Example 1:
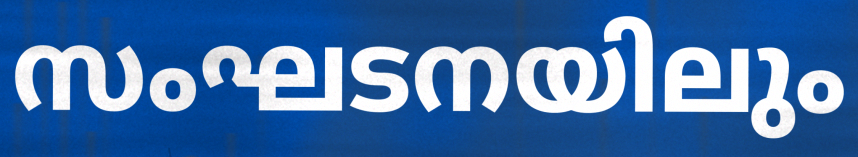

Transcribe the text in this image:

സംഘടനയിലും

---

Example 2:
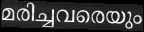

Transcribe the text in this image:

മരിച്ചവരെയും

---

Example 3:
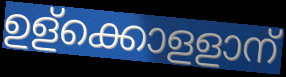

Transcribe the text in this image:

ഉള്ക്കൊളളാന്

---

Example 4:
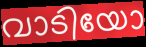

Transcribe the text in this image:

വാടിയോ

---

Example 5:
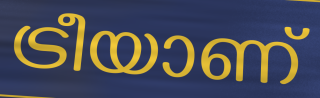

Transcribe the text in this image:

ട്രീയാണ്